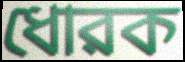
ধোৱক